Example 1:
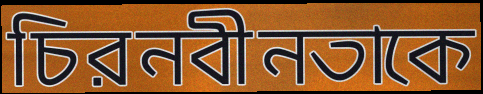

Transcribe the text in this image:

চিরনবীনতাকে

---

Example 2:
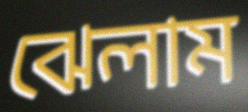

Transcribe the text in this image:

ঝেলাম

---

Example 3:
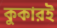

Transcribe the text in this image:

কুকারই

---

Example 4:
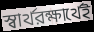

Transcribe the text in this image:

স্বার্থরক্ষার্থেই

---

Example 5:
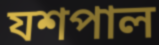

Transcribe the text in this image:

যশপাল